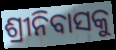
ଶ୍ରୀନିବାସକୁ